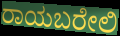
ರಾಯಬರೇಲಿ